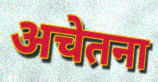
अचेतना